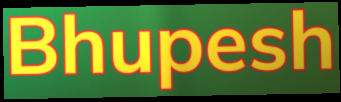
Bhupesh